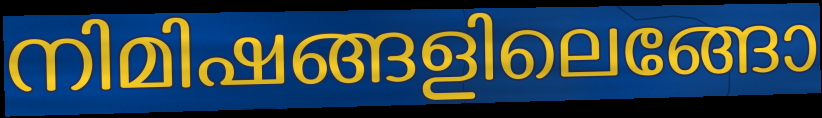
നിമിഷങ്ങളിലെങ്ങോ